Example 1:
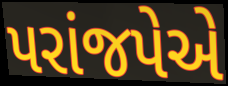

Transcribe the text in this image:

પરાંજપેએ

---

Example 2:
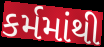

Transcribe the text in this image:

કર્મમાંથી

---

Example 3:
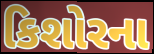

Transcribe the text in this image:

કિશોરના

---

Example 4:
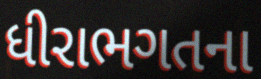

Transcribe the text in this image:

ધીરાભગતના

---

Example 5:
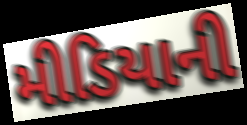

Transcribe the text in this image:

મીડિયાની